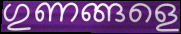
ഗുണങ്ങളെ